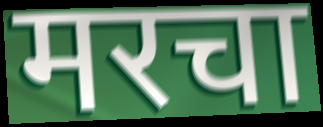
मरचा